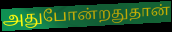
அதுபோன்றதுதான்